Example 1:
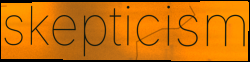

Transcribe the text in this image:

skepticism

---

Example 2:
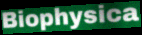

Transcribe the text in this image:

Biophysica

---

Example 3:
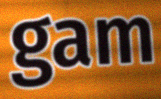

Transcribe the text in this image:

gam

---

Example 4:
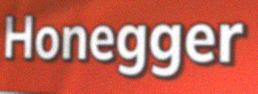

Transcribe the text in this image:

Honegger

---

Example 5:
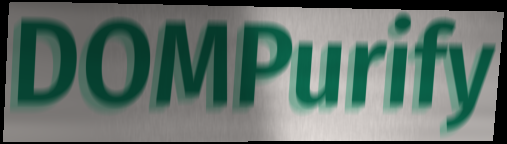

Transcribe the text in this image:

DOMPurify